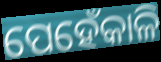
ପେହେଁକାଳି